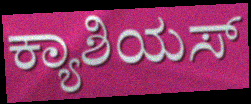
ಕ್ಯಾಶಿಯಸ್